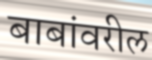
बाबांवरील